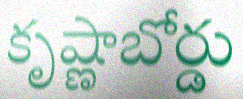
కృష్ణాబోర్డు